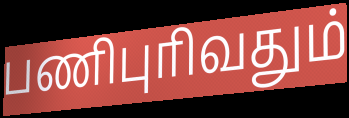
பணிபுரிவதும்